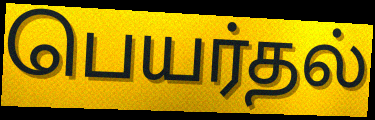
பெயர்தல்